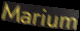
Marium